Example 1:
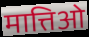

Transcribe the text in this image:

मात्तिओ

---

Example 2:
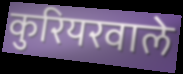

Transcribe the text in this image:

कुरियरवाले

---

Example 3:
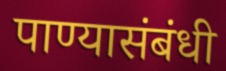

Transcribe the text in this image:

पाण्यासंबंधी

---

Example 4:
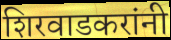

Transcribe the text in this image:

शिरवाडकरांनी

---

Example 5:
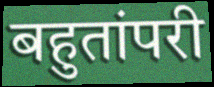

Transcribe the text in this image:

बहुतांपरी